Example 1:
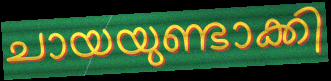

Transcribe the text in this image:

ചായയുണ്ടാക്കി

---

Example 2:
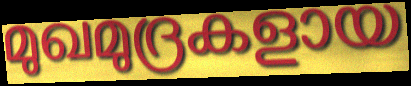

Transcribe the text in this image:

മുഖമുദ്രകളായ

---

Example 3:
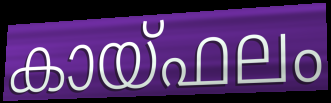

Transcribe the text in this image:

കായ്ഫലം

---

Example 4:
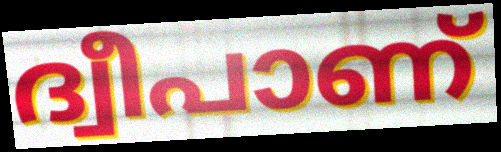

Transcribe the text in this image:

ദ്വീപാണ്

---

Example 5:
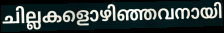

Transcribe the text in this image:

ചില്ലകളൊഴിഞ്ഞവനായി